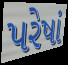
પરેષાં